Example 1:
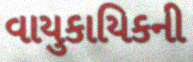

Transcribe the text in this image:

વાયુકાયિકની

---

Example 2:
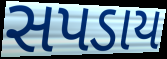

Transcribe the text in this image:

સપડાય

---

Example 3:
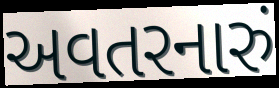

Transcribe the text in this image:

અવતરનારું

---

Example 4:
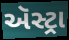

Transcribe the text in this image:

ઍસ્ટ્રા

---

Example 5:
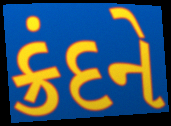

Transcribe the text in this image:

ક્રંદને